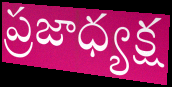
ప్రజాధ్యక్ష